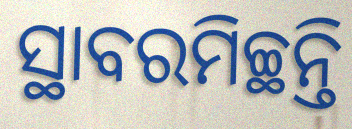
ସ୍ଥାବରମିଚ୍ଛନ୍ତି